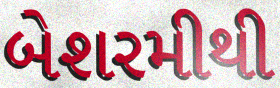
બેશરમીથી